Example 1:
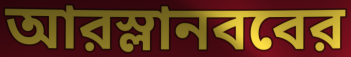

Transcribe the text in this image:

আরস্লানববের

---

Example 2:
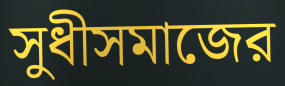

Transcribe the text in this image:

সুধীসমাজের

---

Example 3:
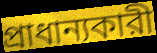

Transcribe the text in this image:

প্রাধান্যকারী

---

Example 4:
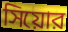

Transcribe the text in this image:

সিয়োর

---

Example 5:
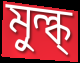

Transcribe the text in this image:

মুল্ক্